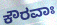
ಕೌರವಾಃ